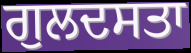
ਗੁਲਦਸਤਾ